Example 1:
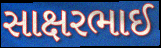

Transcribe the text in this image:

સાક્ષરભાઈ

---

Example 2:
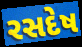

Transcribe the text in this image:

રસદેષ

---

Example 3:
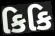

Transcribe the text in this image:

કિકિ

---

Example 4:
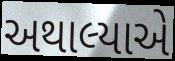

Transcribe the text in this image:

અથાલ્યાએ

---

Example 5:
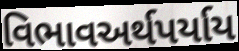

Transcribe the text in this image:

વિભાવઅર્થપર્યાય